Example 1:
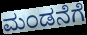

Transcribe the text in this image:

ಮಂಡನೆಗೆ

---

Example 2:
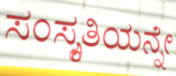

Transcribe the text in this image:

ಸಂಸ್ಕೃತಿಯನ್ನೇ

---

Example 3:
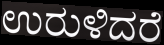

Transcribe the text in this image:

ಉರುಳಿದರೆ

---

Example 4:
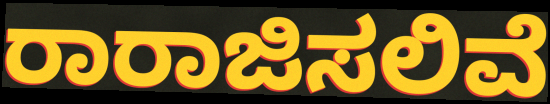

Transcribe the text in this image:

ರಾರಾಜಿಸಲಿವೆ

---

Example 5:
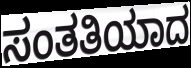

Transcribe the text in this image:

ಸಂತತಿಯಾದ